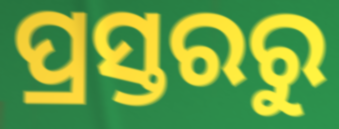
ପ୍ରସ୍ତରରୁ